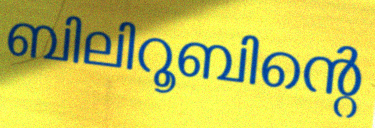
ബിലിറൂബിന്റെ